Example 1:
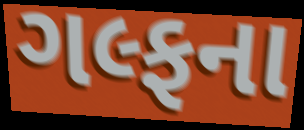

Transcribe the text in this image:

ગલ્ફના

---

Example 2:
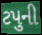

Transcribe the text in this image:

ટપુની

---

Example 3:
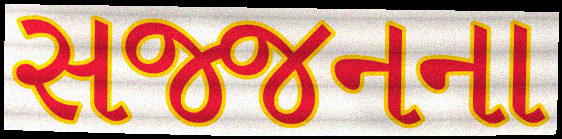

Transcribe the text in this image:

સજ્જનના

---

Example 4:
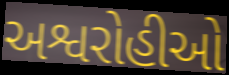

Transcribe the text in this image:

અશ્વરોહીઓ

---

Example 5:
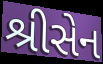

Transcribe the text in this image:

શ્રીસેન